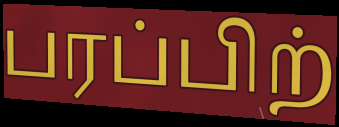
பரப்பிற்